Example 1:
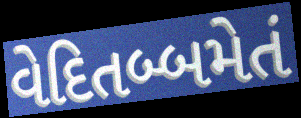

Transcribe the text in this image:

વેદિતબ્બમેતં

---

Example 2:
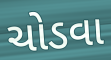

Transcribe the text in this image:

ચોડવા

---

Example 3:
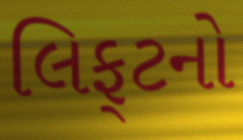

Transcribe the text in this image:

લિફ્‌ટનો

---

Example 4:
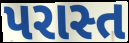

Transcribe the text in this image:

પરાસ્ત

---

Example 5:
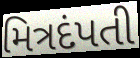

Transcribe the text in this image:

મિત્રદંપતી